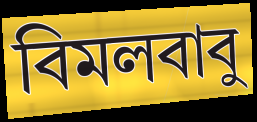
বিমলবাবু